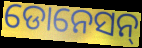
ଡୋନେସନ୍